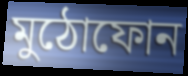
মুঠোফোন